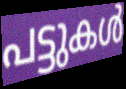
പട്ടുകൾ